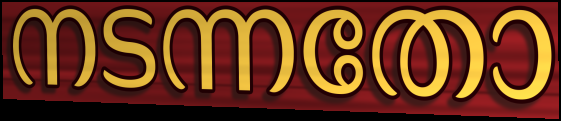
നടന്നതോ